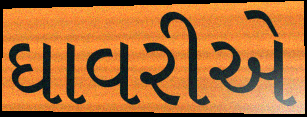
ઘાવરીએ